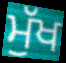
ਮੁੱਖ